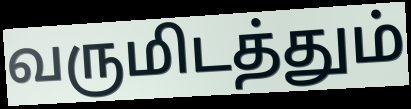
வருமிடத்தும்